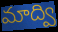
మాద్వి